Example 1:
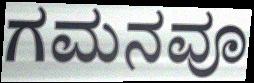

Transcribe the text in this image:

ಗಮನವೂ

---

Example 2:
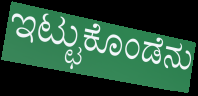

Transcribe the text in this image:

ಇಟ್ಟುಕೊಂಡೆನು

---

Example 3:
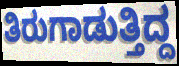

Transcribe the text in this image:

ತಿರುಗಾಡುತ್ತಿದ್ದ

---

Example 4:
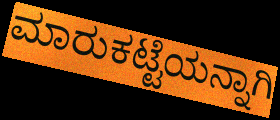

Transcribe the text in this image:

ಮಾರುಕಟ್ಟೆಯನ್ನಾಗಿ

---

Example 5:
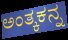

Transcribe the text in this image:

ಅಂತ್ಕಕನ್ನ